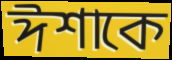
ঈশাকে